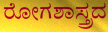
ರೋಗಶಾಸ್ತ್ರದ